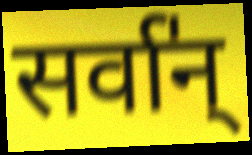
सर्वा॑न्